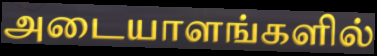
அடையாளங்களில்